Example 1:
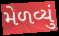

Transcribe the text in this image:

મેળવ્યું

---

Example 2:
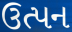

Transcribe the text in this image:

ઉત્પન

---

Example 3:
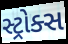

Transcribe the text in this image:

સ્ટ્રોક્સ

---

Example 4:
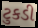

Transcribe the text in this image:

ટુકડી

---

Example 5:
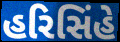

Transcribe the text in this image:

હરિસિંહે